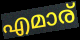
എമാര്